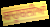
ਬਾਹੂਬਲੀਆਂ